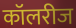
कॉलरीज